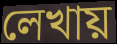
লেখায়